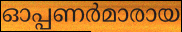
ഓപ്പണർമാരായ